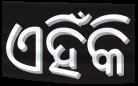
ଏହିଁକି